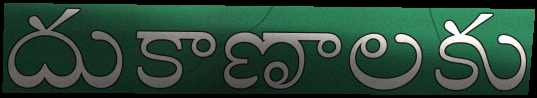
దుకాణాలకు